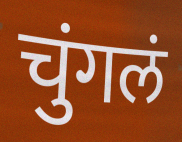
चुंगलं